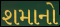
શમાનો